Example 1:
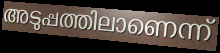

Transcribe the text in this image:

അടുപ്പത്തിലാണെന്ന്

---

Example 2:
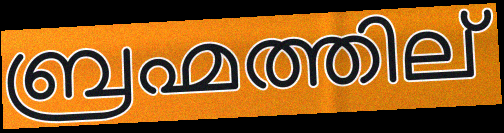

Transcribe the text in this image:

ബ്രഹ്മത്തില്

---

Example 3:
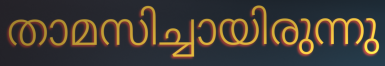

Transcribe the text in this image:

താമസിച്ചായിരുന്നു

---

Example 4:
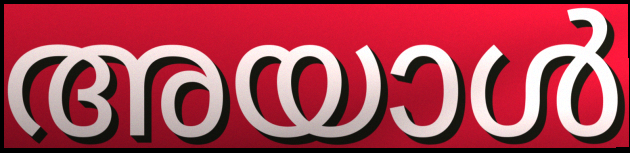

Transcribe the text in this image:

അയാൾ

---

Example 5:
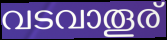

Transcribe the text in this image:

വടവാതൂര്